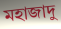
মহাজাদু